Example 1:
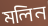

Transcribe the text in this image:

মলিন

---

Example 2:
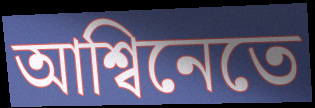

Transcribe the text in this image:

আশ্বিনেতে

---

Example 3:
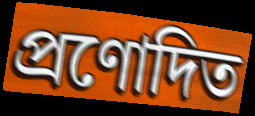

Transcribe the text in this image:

প্ৰণোদিত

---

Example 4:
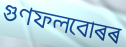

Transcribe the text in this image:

গুণফলবোৰৰ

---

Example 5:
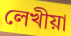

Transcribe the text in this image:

লেখীয়া